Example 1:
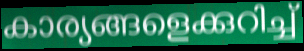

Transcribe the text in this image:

കാര്യങ്ങളെക്കുറിച്ച്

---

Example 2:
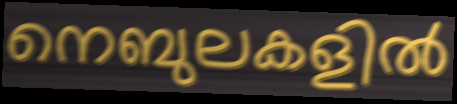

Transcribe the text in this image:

നെബുലകളിൽ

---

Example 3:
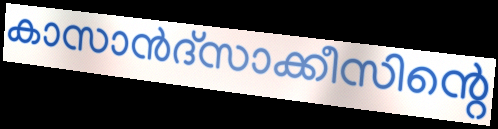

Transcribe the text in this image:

കാസാൻദ്സാക്കീസിന്റെ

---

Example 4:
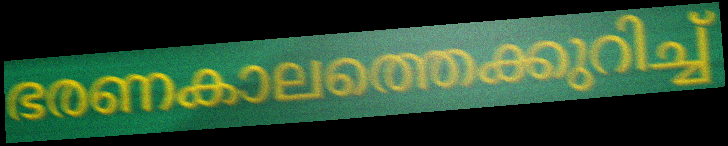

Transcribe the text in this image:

ഭരണകാലത്തെക്കുറിച്ച്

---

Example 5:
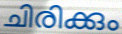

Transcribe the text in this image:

ചിരിക്കും